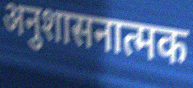
अनुशासनात्मक